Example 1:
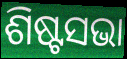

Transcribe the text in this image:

ଶିଷ୍ଟସଭା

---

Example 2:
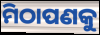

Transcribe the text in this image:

ମିଠାପଣକୁ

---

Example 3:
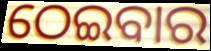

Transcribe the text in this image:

ଠେଇବାର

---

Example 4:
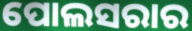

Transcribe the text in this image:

ପୋଲସରାର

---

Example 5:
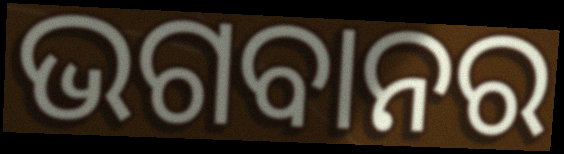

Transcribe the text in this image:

ଭଗବାନର